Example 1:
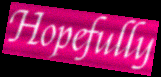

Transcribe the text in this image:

Hopefully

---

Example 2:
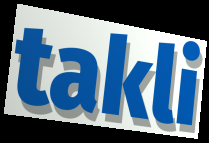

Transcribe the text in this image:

takli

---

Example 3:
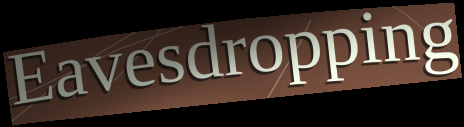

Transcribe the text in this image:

Eavesdropping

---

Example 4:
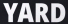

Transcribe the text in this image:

YARD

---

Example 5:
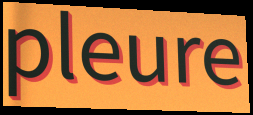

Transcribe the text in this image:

pleure